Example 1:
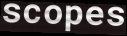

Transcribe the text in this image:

scopes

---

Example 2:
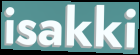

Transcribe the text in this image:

isakki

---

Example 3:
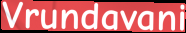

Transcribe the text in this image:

Vrundavani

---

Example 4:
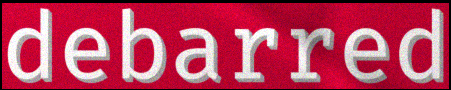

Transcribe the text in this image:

debarred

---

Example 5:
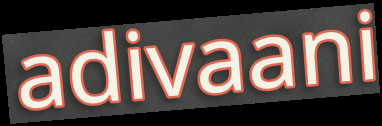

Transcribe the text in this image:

adivaani